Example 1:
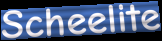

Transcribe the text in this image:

Scheelite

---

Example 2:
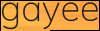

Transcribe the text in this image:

gayee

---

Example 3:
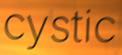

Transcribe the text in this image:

cystic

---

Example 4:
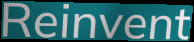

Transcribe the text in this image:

Reinvent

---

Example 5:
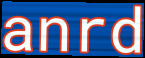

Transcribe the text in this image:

anrd